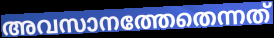
അവസാനത്തേതെന്നത്